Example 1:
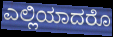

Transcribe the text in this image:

ಎಲ್ಲಿಯಾದರೊ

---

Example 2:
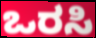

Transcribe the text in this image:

ಒರಸಿ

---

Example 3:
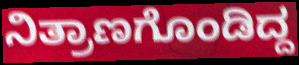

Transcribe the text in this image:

ನಿತ್ರಾಣಗೊಂಡಿದ್ದ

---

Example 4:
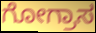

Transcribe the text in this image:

ಗೋಗ್ರಾಸ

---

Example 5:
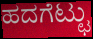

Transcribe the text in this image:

ಹದಗೆಟ್ಟು